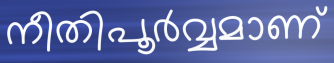
നീതിപൂർവ്വമാണ്